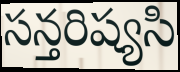
సన్తరిష్యసి